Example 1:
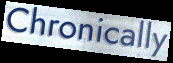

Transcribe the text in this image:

Chronically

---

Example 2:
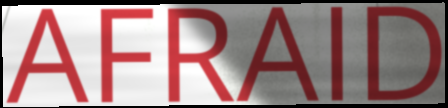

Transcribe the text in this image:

AFRAID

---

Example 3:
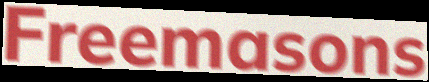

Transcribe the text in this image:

Freemasons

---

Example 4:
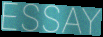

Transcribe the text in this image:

ESSAY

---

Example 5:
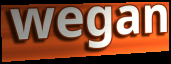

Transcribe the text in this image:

wegan